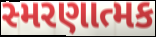
સ્મરણાત્મક